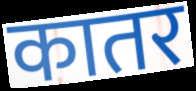
कातर